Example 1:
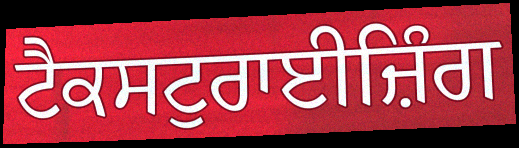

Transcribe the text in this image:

ਟੈਕਸਟੁਰਾਈਜ਼ਿੰਗ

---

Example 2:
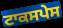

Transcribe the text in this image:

ਟਾਕਸਪੇਸ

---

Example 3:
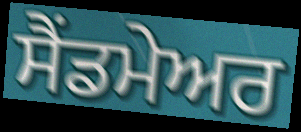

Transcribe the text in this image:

ਸੈਂਡਮੇਅਰ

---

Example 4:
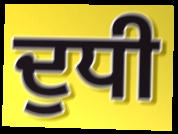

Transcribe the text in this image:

ਦੁਧੀ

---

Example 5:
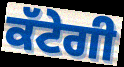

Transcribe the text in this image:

ਕੱਟੇਗੀ